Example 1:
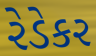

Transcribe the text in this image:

રેડેકર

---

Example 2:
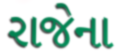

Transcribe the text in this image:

રાજેના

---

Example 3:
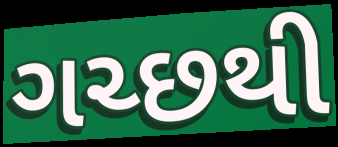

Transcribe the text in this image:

ગચ્છથી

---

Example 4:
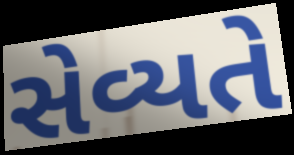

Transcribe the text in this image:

સેવ્યતે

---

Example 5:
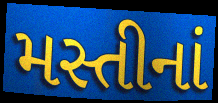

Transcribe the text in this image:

મસ્તીનાં